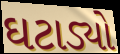
ઘટાડ્યો